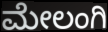
ಮೇಲಂಗಿ